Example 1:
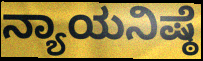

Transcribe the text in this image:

ನ್ಯಾಯನಿಷ್ಠೆ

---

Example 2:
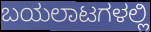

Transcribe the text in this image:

ಬಯಲಾಟಗಳಲ್ಲಿ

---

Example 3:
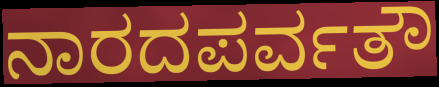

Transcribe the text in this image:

ನಾರದಪರ್ವತೌ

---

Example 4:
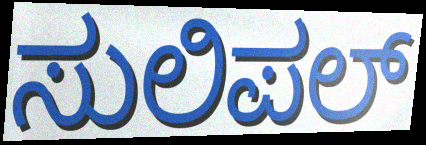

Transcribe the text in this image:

ಸುಲಿಪಲ್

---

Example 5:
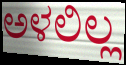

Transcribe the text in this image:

ಅಳಲಿಲ್ಲ